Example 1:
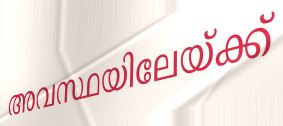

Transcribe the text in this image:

അവസ്ഥയിലേയ്ക്ക്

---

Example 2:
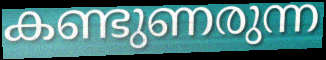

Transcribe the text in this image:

കണ്ടുണരുന്ന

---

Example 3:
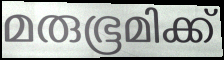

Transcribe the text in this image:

മരുഭൂമിക്ക്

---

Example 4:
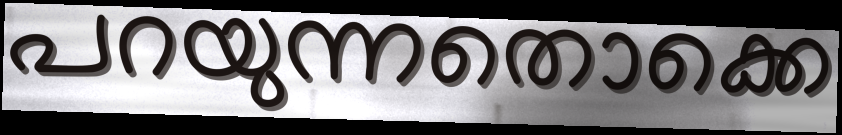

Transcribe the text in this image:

പറയുന്നതൊക്കെ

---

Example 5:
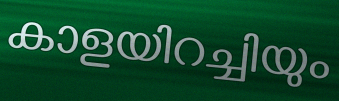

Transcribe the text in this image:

കാളയിറച്ചിയും